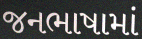
જનભાષામાં